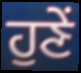
ਹੁਣੇਂ